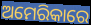
ଅମେରିକାରେ